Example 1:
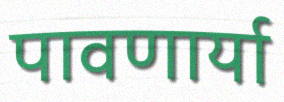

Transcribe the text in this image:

पावणार्या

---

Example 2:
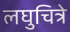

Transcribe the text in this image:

लघुचित्रे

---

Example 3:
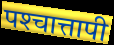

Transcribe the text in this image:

पश्‍चात्तापी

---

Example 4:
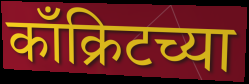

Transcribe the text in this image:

काँक्रिटच्या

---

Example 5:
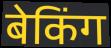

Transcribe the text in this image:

बेकिंग